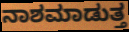
ನಾಶಮಾಡುತ್ತ